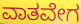
ವಾತವೇಗ